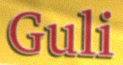
Guli